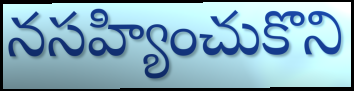
నసహ్యించుకొని